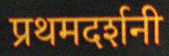
प्रथमदर्शनी